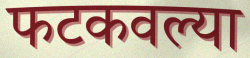
फटकवल्या